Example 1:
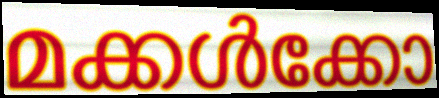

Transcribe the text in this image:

മക്കൾക്കോ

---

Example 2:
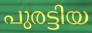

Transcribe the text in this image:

പുരട്ടിയ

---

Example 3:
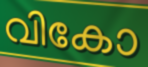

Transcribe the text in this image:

വികോ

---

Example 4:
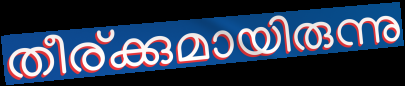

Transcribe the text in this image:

തീര്ക്കുമായിരുന്നു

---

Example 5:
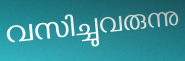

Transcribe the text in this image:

വസിച്ചുവരുന്നു